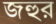
জহুর